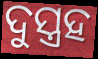
ଦୁସ୍ତ୍ରହ